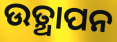
ଉତ୍ଥାପନ